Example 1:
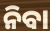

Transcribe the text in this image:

ନିବା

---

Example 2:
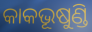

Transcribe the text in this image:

କାକଭୂଷୁଣ୍ଡି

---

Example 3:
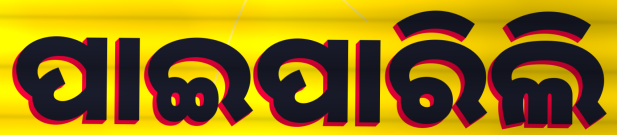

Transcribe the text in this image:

ପାଇପାରିଲି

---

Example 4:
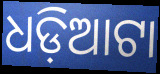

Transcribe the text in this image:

ଧଡ଼ିଆଟା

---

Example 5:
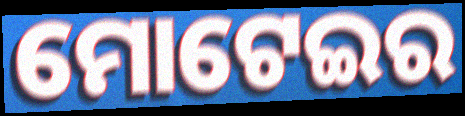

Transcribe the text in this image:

ମୋଟେଇର